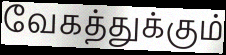
வேகத்துக்கும்